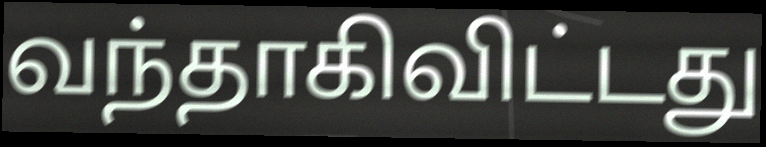
வந்தாகிவிட்டது